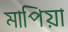
মাপিয়া